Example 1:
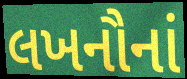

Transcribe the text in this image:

લખનૌનાં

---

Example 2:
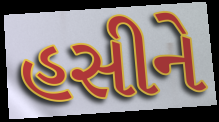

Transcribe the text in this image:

હસીને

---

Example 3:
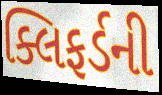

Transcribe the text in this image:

ક્લિફર્ડની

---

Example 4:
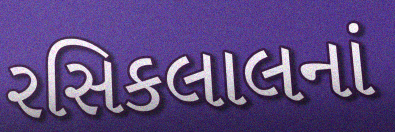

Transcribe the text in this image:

રસિકલાલનાં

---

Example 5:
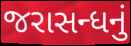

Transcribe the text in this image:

જરાસન્ધનું